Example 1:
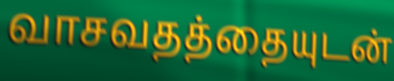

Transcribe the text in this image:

வாசவதத்தையுடன்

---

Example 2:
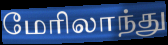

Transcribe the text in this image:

மேரிலாந்து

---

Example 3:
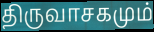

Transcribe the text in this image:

திருவாசகமும்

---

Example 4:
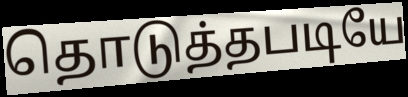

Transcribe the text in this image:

தொடுத்தபடியே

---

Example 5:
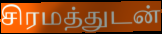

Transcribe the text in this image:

சிரமத்துடன்